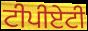
ਟੀਪੀਏਟੀ